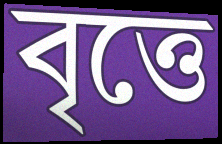
বৃত্তে